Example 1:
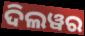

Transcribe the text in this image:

ଦିଲୱର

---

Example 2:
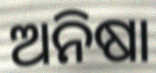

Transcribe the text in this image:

ଅନିଷା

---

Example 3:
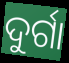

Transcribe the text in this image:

ଦୁର୍ଗା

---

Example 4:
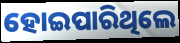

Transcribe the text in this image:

ହୋଇପାରିଥିଲେ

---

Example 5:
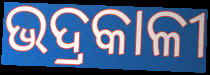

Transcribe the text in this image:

ଭଦ୍ରକାଳୀ